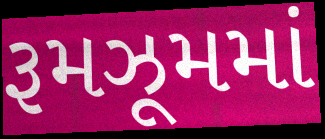
રૂમઝૂમમાં